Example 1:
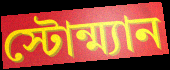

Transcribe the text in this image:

স্টোন্ম্যান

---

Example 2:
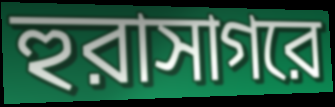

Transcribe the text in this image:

হুরাসাগরে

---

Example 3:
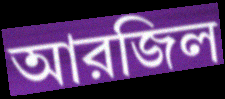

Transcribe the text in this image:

আরজিল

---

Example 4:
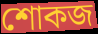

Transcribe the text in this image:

শোকজ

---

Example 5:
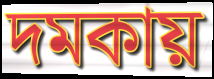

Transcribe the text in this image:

দমকায়